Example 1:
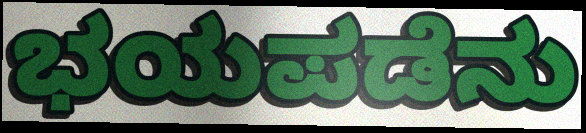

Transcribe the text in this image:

ಭಯಪಡೆನು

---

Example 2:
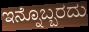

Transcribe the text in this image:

ಇನ್ನೊಬ್ಬರದು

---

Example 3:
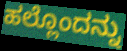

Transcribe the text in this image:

ಹಲ್ಲೊಂದನ್ನು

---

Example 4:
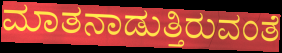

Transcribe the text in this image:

ಮಾತನಾಡುತ್ತಿರುವಂತೆ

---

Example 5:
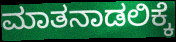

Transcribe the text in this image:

ಮಾತನಾಡಲಿಕ್ಕೆ